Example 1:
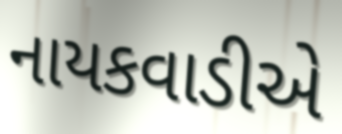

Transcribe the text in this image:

નાયકવાડીએ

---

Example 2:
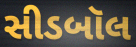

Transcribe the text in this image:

સીડબૉલ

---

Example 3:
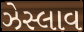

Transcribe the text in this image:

ઝેસ્લાવ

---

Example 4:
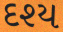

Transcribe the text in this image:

દશ્ય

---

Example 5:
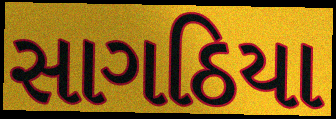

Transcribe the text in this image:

સાગઠિયા